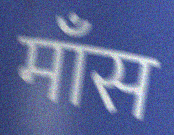
माँस